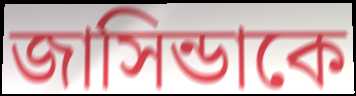
জাসিন্ডাকে